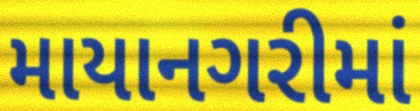
માયાનગરીમાં